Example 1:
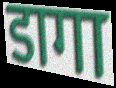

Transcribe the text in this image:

डागा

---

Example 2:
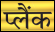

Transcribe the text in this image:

प्लैंक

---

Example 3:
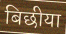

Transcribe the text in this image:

बिछीया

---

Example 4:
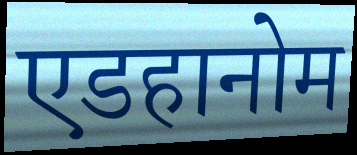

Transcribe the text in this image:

एडहानोम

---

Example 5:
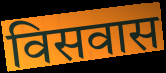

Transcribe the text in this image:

विसवास